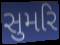
સુમરિ